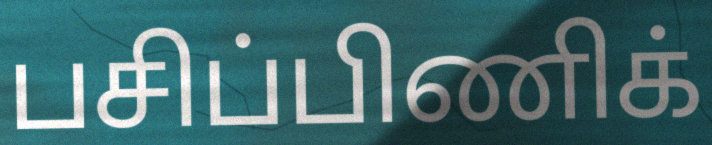
பசிப்பிணிக்